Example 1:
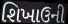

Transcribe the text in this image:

શિખાઉની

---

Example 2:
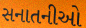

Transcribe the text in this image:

સનાતનીઓ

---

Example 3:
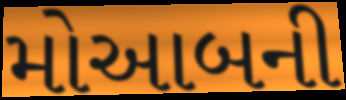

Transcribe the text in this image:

મોઆબની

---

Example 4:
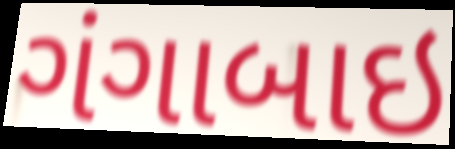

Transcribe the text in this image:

ગંગાબાઇ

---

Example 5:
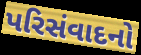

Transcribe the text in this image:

પરિસંવાદનો